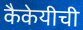
कैकेयीची